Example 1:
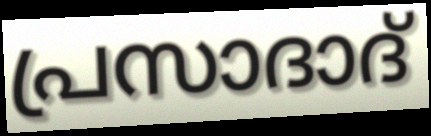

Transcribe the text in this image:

പ്രസാദാദ്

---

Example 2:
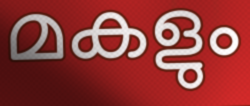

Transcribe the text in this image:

മകളും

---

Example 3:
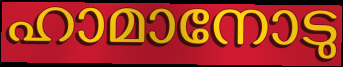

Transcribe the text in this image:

ഹാമാനോടു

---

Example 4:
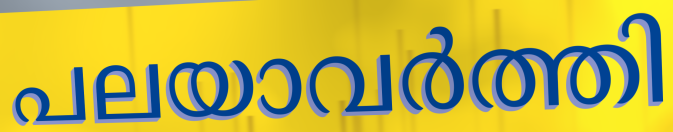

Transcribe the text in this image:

പലയാവർത്തി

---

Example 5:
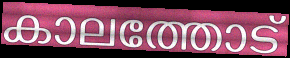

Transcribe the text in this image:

കാലത്തോട്